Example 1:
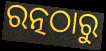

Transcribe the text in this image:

ରତ୍ନଠାରୁ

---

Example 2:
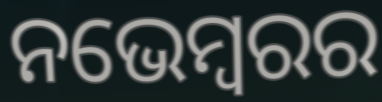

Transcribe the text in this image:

ନଭେମ୍ବରର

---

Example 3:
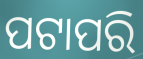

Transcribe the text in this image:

ପଟାପରି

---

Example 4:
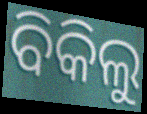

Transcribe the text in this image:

ବିକିଲୁ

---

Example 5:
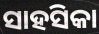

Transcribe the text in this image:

ସାହସିକା